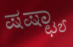
ಷಷ್ಟ್ಯಾ